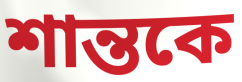
শান্তকে